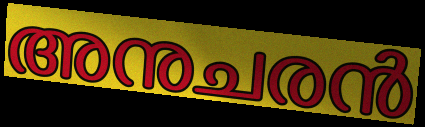
അനുചരൻ